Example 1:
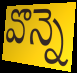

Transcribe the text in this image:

వొన్నె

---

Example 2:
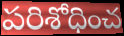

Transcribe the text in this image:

పరిశోధించ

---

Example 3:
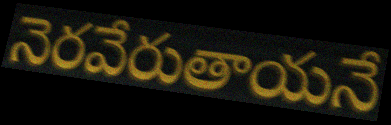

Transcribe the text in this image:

నెరవేరుతాయనే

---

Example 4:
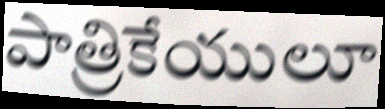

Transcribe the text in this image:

పాత్రికేయులూ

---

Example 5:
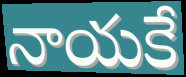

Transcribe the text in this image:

నాయకే